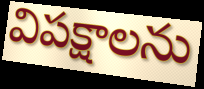
విపక్షాలను